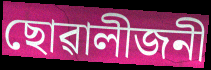
ছোৱালীজনী